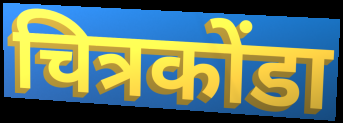
चित्रकोंडा